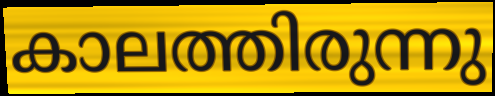
കാലത്തിരുന്നു